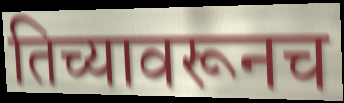
तिच्यावरूनच